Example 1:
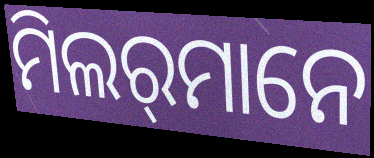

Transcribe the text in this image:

ମିଲର୍‌ମାନେ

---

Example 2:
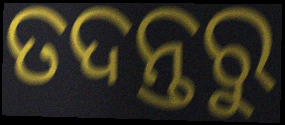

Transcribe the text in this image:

ତଦନ୍ତରୁ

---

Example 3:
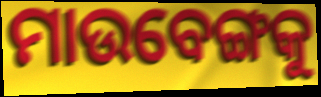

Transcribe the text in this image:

ମାଉବେଙ୍ଗକୁ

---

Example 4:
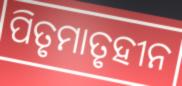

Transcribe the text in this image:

ପିତୃମାତୃହୀନ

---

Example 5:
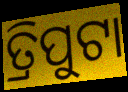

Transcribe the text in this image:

ତ୍ରିପୁଟା